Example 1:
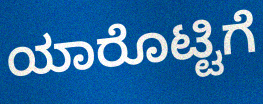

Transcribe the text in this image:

ಯಾರೊಟ್ಟಿಗೆ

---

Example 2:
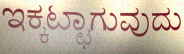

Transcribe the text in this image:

ಇಕ್ಕಟ್ಟಾಗುವುದು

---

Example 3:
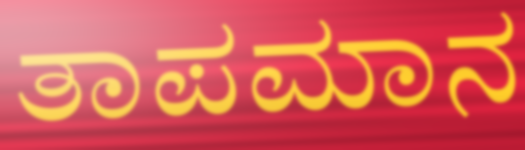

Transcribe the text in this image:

ತಾಪಮಾನ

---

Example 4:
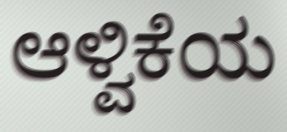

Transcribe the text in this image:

ಆಳ್ವಿಕೆಯ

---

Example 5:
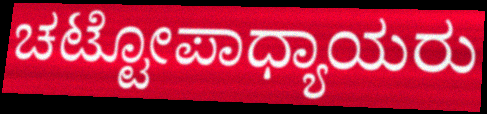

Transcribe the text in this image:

ಚಟ್ಟೋಪಾಧ್ಯಾಯರು